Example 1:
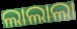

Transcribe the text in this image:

ଲାଲାଲା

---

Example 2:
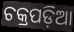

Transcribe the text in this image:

ଚକ୍ରପଡ଼ିଆ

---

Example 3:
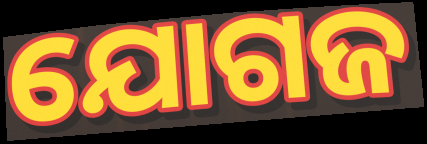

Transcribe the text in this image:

ଯୋଗଜ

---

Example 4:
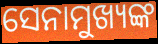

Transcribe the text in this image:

ସେନାମୁଖ୍ୟଙ୍କ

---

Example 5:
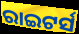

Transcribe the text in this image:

ରାଇଟର୍ସ